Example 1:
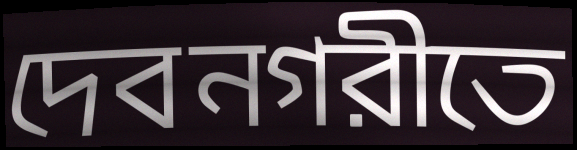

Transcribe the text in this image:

দেবনগরীতে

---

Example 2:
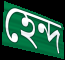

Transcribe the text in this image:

হেন্দ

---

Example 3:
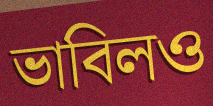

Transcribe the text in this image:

ভাবিলও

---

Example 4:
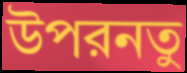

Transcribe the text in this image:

উপরনতু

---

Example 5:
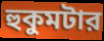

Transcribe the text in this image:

হুকুমটার